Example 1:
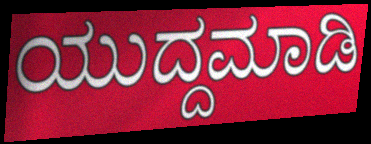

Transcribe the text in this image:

ಯುದ್ದಮಾಡಿ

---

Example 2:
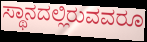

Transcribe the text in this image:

ಸ್ಥಾನದಲ್ಲಿರುವವರೂ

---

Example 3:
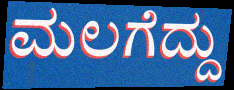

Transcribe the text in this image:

ಮಲಗೆದ್ದು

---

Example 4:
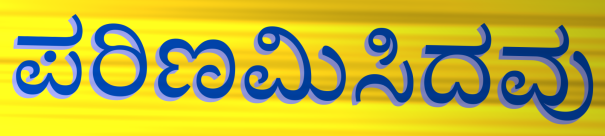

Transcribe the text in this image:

ಪರಿಣಮಿಸಿದವು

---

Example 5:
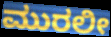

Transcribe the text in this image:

ಮುರಲೀ